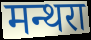
मन्थरा